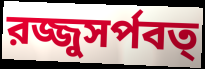
রজ্জুসর্পবত্